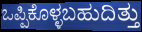
ಒಪ್ಪಿಕೊಳ್ಳಬಹುದಿತ್ತು